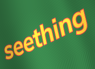
seething